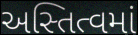
અસ્તિત્વમાં